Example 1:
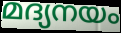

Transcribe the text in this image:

മദ്യനയം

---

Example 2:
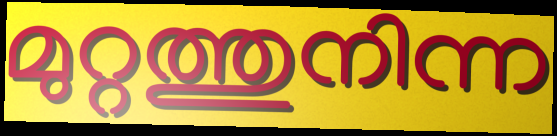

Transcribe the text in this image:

മുറ്റത്തുനിന്ന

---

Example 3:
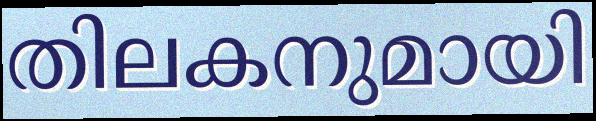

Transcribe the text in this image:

തിലകനുമായി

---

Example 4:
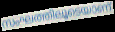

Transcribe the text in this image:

സംഘത്തിലൂടെയാണ്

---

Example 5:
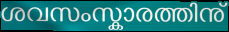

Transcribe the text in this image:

ശവസംസ്കാരത്തിനു്